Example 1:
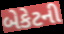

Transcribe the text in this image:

બેકેટની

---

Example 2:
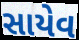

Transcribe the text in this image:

સાયેવ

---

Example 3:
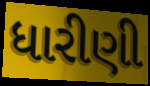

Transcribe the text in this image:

ધારીણી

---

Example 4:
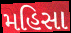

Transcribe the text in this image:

મહિસા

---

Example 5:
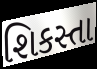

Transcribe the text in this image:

શિકસ્તા